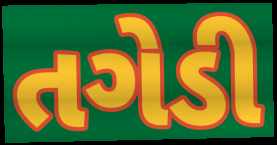
તગેડી